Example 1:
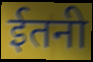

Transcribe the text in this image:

ईतनी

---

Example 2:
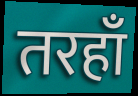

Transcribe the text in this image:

तरहाँ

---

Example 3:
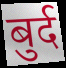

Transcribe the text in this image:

बुर्द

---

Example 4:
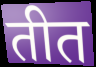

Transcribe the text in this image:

तीत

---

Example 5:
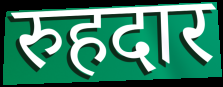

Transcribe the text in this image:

रुहदार